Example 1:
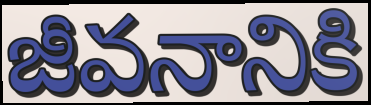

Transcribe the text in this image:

జీవనానికి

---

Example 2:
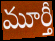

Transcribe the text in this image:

మూర్తీ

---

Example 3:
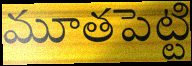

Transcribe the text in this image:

మూతపెట్టి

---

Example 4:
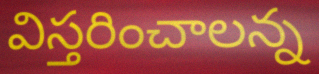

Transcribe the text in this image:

విస్తరించాలన్న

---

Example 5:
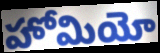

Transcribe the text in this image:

హోమియో